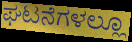
ಘಟನೆಗಳಲ್ಲೂ